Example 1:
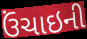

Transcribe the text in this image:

ઉંચાઇની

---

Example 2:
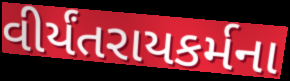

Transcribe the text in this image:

વીર્યંતરાયકર્મના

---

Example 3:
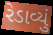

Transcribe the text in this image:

રેડાવ્યું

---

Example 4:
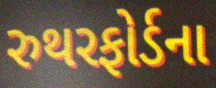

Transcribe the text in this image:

રુથરફોર્ડના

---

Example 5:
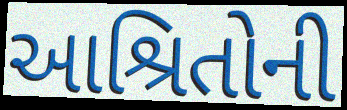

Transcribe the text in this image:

આશ્રિતોની